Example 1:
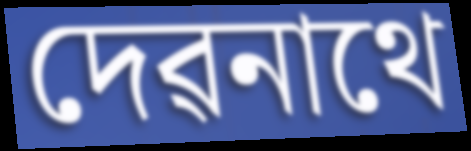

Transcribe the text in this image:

দেৱনাথে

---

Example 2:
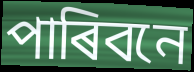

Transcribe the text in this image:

পাৰিবনে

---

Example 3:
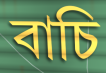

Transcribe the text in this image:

বাচি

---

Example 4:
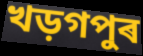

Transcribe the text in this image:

খড়গপুৰ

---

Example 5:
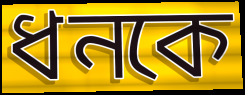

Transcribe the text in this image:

ধনকে